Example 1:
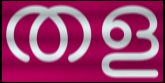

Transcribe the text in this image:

തള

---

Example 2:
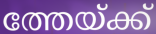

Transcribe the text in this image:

ത്തേയ്ക്ക്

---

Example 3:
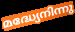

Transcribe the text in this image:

മദ്ധ്യേനിന്നു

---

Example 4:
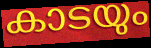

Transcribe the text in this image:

കാടയും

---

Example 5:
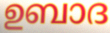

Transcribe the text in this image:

ഉബാദ